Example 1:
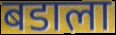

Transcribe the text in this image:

बडाला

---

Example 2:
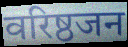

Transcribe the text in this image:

वरिष्ठजन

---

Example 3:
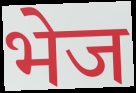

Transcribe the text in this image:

भेज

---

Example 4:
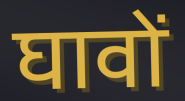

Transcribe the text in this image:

घावों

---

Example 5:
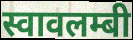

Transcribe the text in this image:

स्वावलम्बी